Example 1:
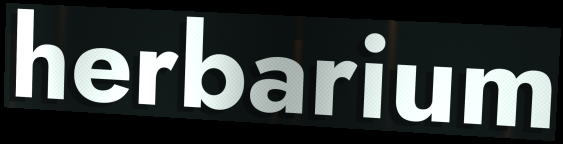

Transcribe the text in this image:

herbarium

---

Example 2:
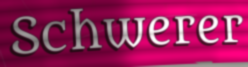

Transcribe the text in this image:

Schwerer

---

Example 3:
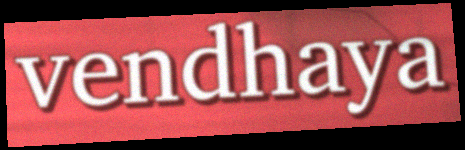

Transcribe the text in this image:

vendhaya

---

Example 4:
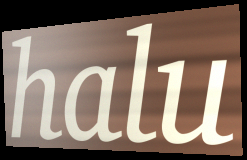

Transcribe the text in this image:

halu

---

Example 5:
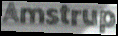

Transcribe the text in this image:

Amstrup